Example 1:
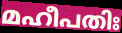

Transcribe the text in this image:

മഹീപതിഃ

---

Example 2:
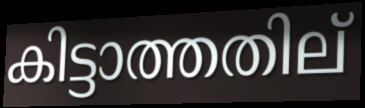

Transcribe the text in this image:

കിട്ടാത്തതില്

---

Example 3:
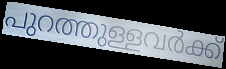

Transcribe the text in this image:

പുറത്തുള്ളവർക്ക്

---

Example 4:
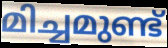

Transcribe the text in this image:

മിച്ചമുണ്ട്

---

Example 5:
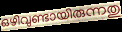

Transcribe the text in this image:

ഒഴിവുണ്ടായിരുന്നതു